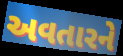
અવતારને